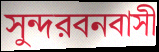
সুন্দরবনবাসী